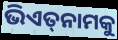
ଭିଏତ୍‌ନାମକୁ